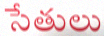
సేతులు